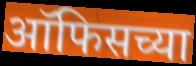
ऑफिसच्या